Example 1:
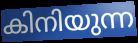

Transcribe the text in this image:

കിനിയുന്ന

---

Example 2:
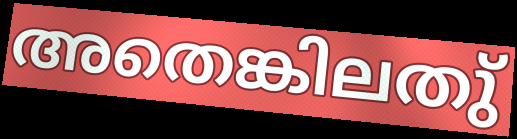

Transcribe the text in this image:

അതെങ്കിലതു്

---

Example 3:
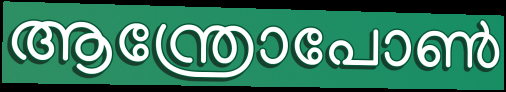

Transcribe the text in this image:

ആന്ത്രോപോൺ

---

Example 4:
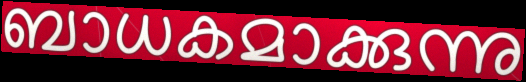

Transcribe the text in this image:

ബാധകമാക്കുന്നു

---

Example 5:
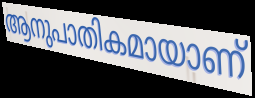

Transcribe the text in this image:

ആനുപാതികമായാണ്